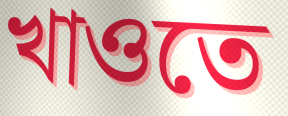
খাওতে